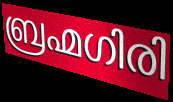
ബ്രഹ്മഗിരി